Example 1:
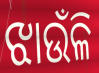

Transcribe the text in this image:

ଝାଉଁଳି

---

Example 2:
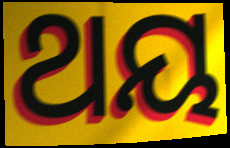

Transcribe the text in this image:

ଥୟ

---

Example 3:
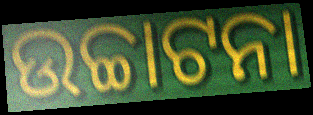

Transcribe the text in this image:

ଉଚ୍ଚାଟନା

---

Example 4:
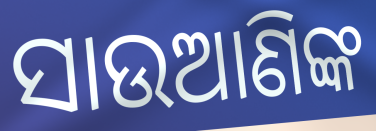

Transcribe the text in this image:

ସାଉଆଣିଙ୍କ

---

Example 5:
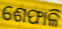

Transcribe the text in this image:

ଶେଫାଳି